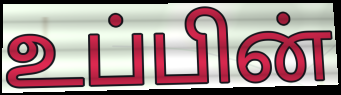
உப்பின்